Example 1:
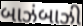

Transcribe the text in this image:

બાઝંબાઝી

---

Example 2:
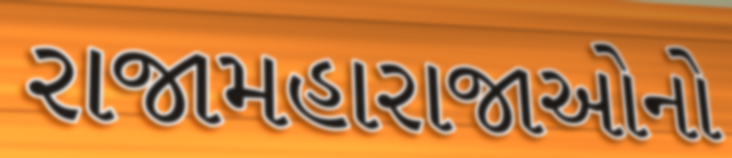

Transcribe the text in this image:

રાજામહારાજાઓનો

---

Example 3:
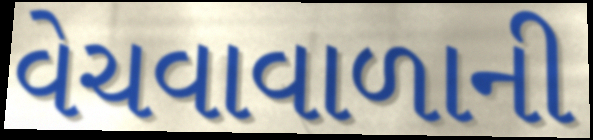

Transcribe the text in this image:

વેચવાવાળાની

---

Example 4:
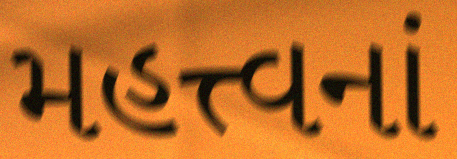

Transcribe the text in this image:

મહત્ત્વનાં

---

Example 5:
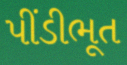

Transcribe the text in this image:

પીંડીભૂત